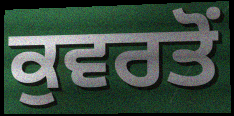
ਕੁਵਰਤੋਂ